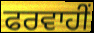
ਫਰਵਾਹੀਂ